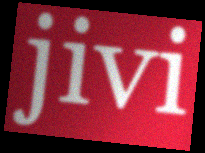
jivi